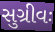
સુગ્રીવઃ